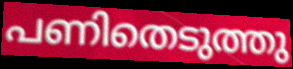
പണിതെടുത്തു